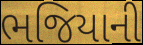
ભજિયાની